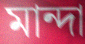
মান্দা